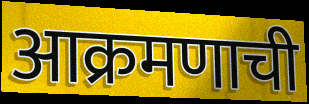
आक्रमणाची